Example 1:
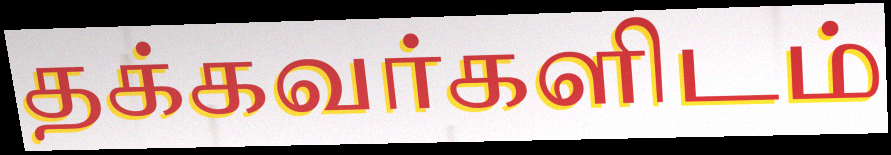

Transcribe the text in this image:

தக்கவர்களிடம்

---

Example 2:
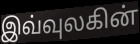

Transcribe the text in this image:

இவ்வுலகின்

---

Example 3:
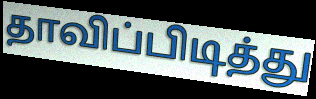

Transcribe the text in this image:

தாவிப்பிடித்து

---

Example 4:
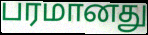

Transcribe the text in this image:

பரமானது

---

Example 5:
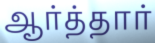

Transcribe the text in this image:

ஆர்த்தார்